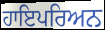
ਹਾਇਪਰਿਅਨ